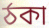
ঠকা